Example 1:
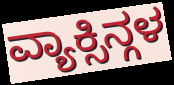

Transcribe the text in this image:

ವ್ಯಾಕ್ಸಿನ್ಗಳ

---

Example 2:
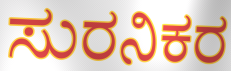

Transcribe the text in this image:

ಸುರನಿಕರ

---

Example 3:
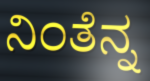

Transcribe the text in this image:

ನಿಂತೆನ್ನ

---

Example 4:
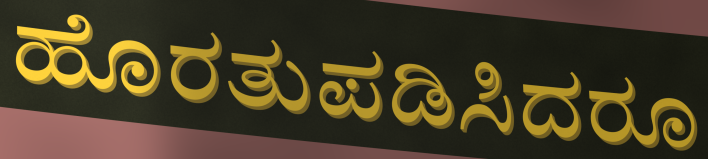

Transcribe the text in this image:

ಹೊರತುಪಡಿಸಿದರೂ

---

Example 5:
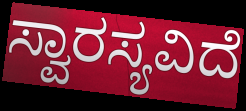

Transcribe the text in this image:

ಸ್ವಾರಸ್ಯವಿದೆ